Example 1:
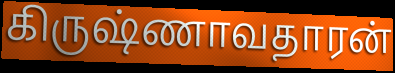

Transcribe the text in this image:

கிருஷ்ணாவதாரன்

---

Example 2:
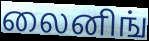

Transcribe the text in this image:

லைனிங்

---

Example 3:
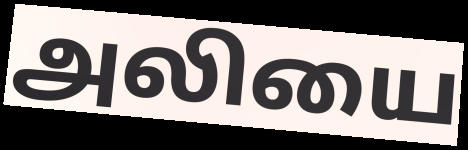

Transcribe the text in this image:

அலியை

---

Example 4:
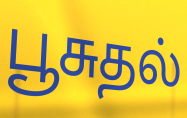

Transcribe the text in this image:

பூசுதல்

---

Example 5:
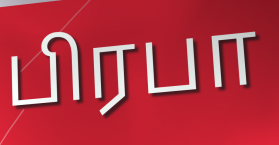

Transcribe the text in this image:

பிரபா